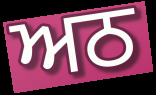
ਅਠ